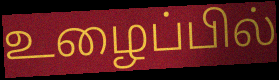
உழைப்பில்